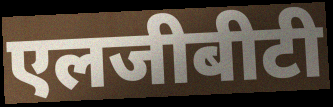
एलजीबीटी